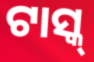
ଟାସ୍କ୍